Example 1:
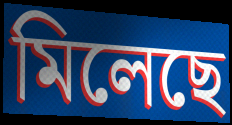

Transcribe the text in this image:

মিলেছে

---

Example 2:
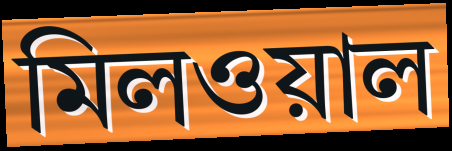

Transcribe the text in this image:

মিলওয়াল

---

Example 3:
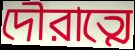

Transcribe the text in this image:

দৌরাত্মে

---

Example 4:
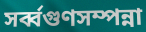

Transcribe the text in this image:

সর্ব্বগুণসম্পন্না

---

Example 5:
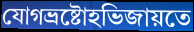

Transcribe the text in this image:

যোগভ্রষ্টোহভিজায়তে